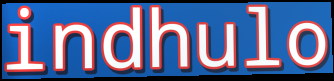
indhulo